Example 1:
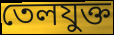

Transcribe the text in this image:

তেলযুক্ত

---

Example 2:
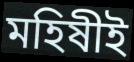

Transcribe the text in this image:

মহিষীই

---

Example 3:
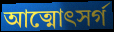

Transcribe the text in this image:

আত্মোৎসর্গ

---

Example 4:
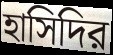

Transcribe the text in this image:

হাসিদির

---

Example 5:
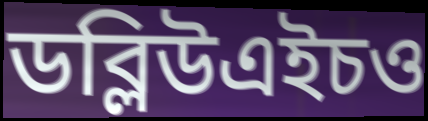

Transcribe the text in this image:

ডব্লিউএইচও